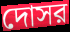
দোসর